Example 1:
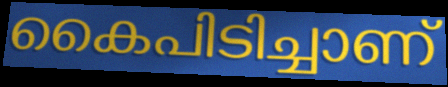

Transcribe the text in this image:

കൈപിടിച്ചാണ്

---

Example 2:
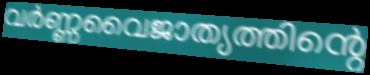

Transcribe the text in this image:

വർണ്ണവൈജാത്യത്തിന്റെ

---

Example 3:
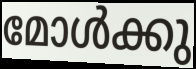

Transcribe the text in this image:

മോൾക്കു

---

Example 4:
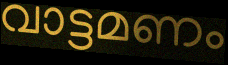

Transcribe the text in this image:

വാട്ടമണം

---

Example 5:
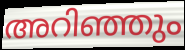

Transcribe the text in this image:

അറിഞ്ഞും